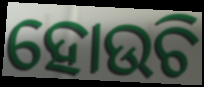
ହୋଉଚି